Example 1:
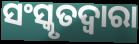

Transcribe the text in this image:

ସଂସ୍କୃତଦ୍ୱାରା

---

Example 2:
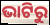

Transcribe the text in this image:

ଭାଟିରୁ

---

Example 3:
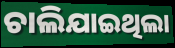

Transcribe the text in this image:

ଚାଲିଯାଇଥିଲା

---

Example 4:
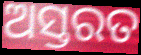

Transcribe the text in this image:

ଅସ୍ତରତ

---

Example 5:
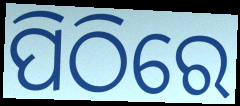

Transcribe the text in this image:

ପିଠିରେ